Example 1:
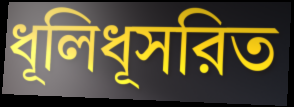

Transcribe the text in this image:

ধূলিধূসরিত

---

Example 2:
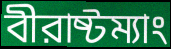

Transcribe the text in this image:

বীরাষ্টম্যাং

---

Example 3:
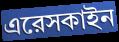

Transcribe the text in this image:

এরেসকাইন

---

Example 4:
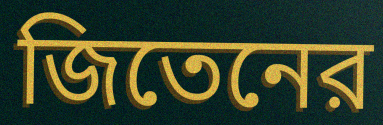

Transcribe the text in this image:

জিতেনের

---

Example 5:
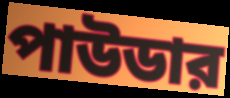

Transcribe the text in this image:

পাউডার